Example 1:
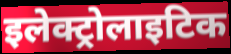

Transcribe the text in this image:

इलेक्ट्रोलाइटिक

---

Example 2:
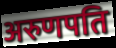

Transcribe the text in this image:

अरुणपति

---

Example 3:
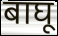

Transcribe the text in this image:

बाघू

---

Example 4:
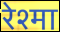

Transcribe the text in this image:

रेश्मा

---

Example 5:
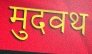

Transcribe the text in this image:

मुदवथ